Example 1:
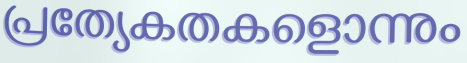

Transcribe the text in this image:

പ്രത്യേകതകളൊന്നും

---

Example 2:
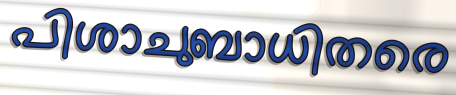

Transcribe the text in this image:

പിശാചുബാധിതരെ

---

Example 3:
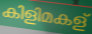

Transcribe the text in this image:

കിളിമകള്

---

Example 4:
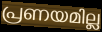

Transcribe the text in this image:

പ്രണയമില്ല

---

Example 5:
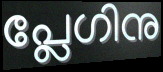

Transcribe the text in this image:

പ്ലേഗിനു